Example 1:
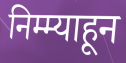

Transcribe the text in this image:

निम्म्याहून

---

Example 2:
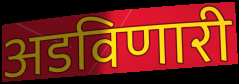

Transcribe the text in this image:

अडविणारी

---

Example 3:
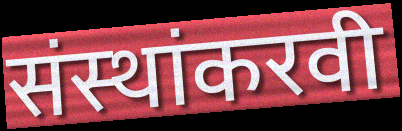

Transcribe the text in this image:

संस्थांकरवी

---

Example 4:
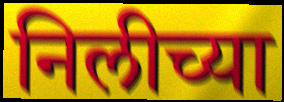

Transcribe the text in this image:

निलीच्या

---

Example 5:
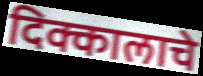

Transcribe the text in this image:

दिक्कालाचे